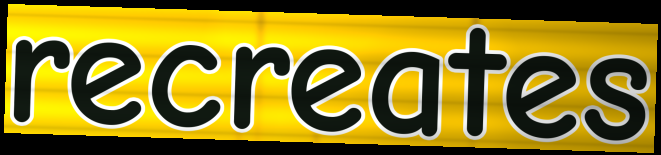
recreates